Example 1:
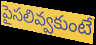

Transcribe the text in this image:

పైసలివ్వకుంటే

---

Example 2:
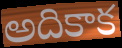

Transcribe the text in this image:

అదికాక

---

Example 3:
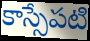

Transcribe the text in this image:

కాస్సేపటి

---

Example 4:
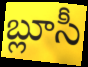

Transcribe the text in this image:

బ్లూసీ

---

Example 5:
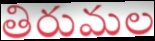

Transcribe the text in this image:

తిరుమల